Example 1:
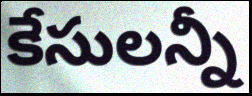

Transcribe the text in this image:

కేసులన్నీ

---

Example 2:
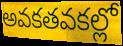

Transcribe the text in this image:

అవకతవకల్లో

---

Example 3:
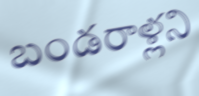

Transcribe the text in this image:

బండరాళ్లని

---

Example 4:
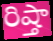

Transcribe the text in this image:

రిష్తా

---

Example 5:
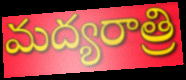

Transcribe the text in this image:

మద్యరాత్రి